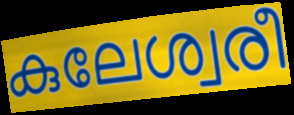
കുലേശ്വരീ